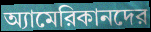
অ্যামেরিকানদের